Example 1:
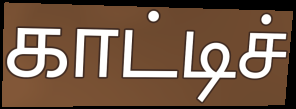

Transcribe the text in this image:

காட்டிச்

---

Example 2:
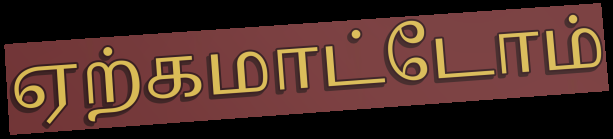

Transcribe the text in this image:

ஏற்கமாட்டோம்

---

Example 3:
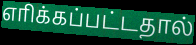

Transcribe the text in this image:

எரிக்கப்பட்டதால்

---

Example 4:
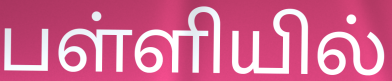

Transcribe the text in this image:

பள்ளியில்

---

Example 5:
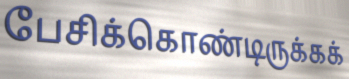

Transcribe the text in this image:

பேசிக்கொண்டிருக்கக்